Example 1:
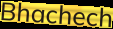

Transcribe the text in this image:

Bhachech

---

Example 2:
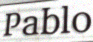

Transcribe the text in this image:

Pablo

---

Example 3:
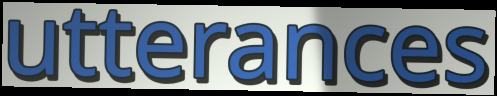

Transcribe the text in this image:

utterances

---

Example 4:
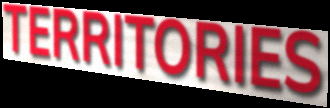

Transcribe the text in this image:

TERRITORIES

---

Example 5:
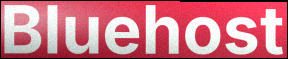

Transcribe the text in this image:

Bluehost